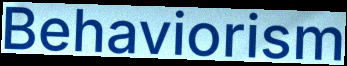
Behaviorism